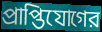
প্রাপ্তিযোগের